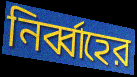
নির্ব্বাহের